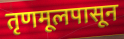
तृणमूलपासून